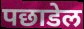
पछाडेल